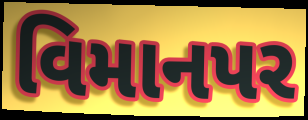
વિમાનપર